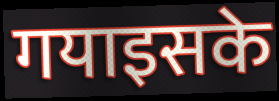
गयाइसके